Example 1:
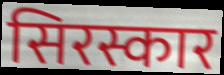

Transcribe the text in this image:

सिरस्कार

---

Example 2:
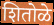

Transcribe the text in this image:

शितोळे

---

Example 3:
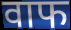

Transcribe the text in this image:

वाफ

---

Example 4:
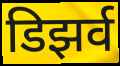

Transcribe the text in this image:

डिझर्व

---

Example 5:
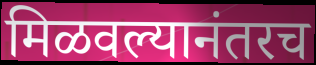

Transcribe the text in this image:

मिळवल्यानंतरच